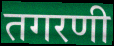
तगरणी